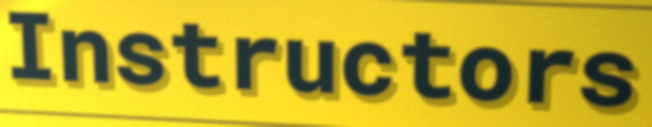
Instructors